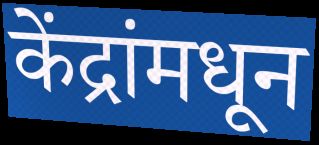
केंद्रांमधून